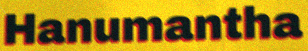
Hanumantha